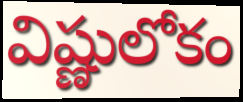
విష్ణులోకం